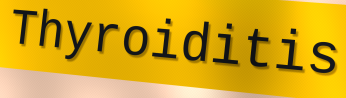
Thyroiditis